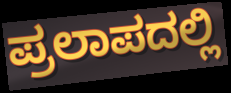
ಪ್ರಲಾಪದಲ್ಲಿ